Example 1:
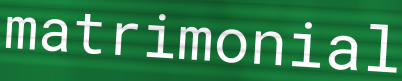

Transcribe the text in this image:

matrimonial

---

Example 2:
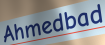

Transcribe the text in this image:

Ahmedbad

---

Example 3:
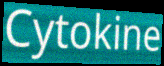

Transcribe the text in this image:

Cytokine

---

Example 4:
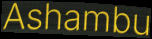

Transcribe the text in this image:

Ashambu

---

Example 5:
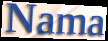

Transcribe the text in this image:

Nama